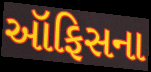
ઑફિસના